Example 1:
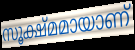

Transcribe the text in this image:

സൂക്ഷ്മമായാണ്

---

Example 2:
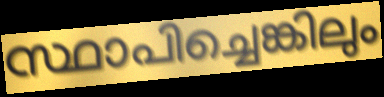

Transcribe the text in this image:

സ്ഥാപിച്ചെങ്കിലും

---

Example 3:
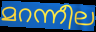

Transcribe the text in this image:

മറന്നീല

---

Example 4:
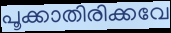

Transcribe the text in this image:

പൂക്കാതിരിക്കവേ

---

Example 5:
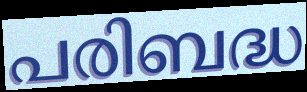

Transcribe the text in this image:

പരിബദ്ധ